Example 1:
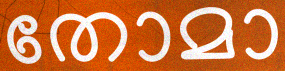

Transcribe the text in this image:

തോമാ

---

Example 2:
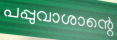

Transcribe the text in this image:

പപ്പുവാശാന്റെ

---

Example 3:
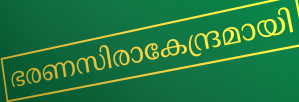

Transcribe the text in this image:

ഭരണസിരാകേന്ദ്രമായി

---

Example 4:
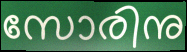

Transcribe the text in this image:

സോരിനു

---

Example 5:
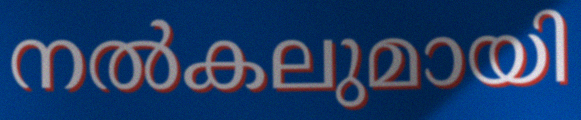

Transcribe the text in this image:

നൽകലുമായി